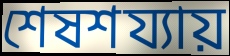
শেষশয্যায়